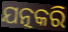
ଯତ୍ନକରି